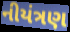
નીયંત્રણ